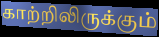
காற்றிலிருக்கும்